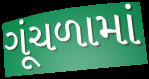
ગૂંચળામાં